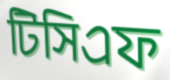
টিসিএফ